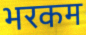
भरकम